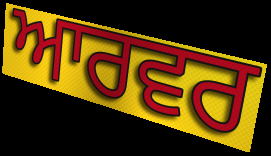
ਆਰਵਰ